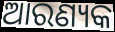
ଆରଣ୍ୟକ